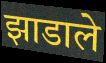
झाडाले